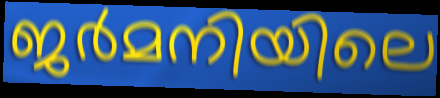
ജർമനിയിലെ